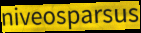
niveosparsus